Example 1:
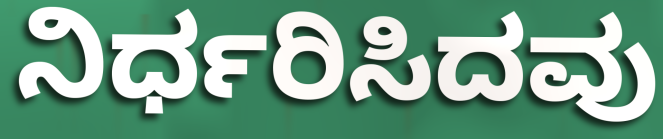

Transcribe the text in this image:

ನಿರ್ಧರಿಸಿದವು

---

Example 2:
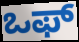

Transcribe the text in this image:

ಒಫ್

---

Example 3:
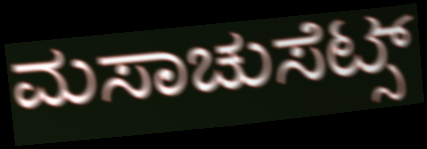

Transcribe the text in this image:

ಮಸಾಚುಸೆಟ್ಸ್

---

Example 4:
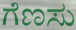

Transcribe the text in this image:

ಗೆಣಸು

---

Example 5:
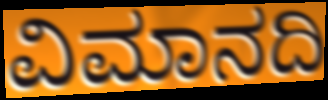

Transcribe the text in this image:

ವಿಮಾನದಿ